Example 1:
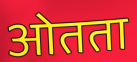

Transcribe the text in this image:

ओतता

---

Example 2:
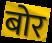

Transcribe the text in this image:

बोर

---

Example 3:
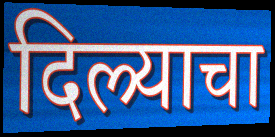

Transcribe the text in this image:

दिल्याचा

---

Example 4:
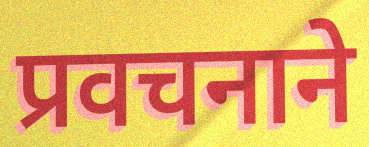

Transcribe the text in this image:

प्रवचनाने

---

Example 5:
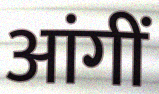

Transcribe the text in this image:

आंगीं